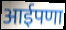
आईपणा